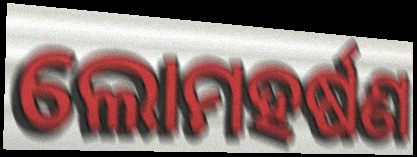
ଲୋମହର୍ଷଣ